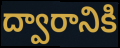
ద్వారానికి